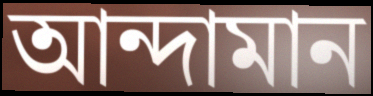
আন্দামান